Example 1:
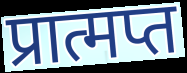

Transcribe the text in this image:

प्रात्मप्त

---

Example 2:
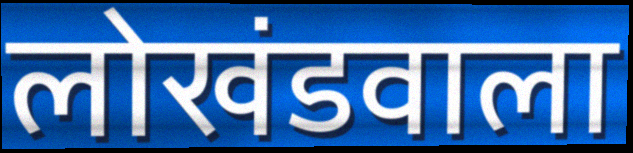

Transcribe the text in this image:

लोखंडवाला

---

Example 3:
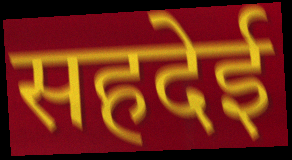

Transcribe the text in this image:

सहदेई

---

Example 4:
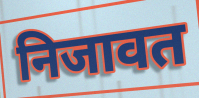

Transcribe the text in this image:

निजावत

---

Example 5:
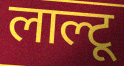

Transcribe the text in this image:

लाल्‍टू